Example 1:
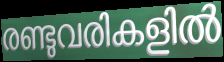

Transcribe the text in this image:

രണ്ടുവരികളിൽ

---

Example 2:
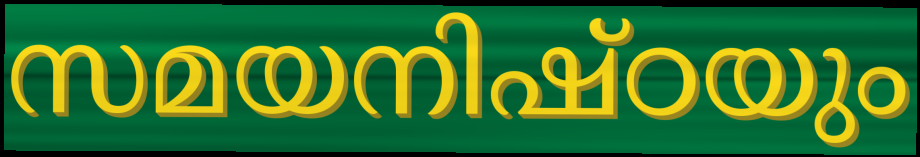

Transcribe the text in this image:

സമയനിഷ്ഠയും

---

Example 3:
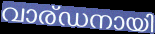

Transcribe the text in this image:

വാര്ഡനായി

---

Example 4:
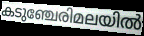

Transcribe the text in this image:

കടുഞ്ചേരിമലയിൽ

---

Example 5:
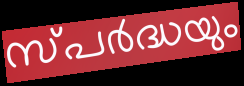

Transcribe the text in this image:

സ്പർദ്ധയും